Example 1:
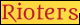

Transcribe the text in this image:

Rioters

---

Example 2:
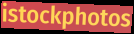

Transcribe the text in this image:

istockphotos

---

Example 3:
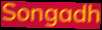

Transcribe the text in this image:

Songadh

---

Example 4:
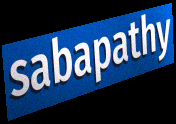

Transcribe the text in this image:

sabapathy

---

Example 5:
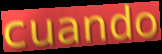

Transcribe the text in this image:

cuando